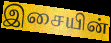
இசையின்